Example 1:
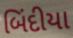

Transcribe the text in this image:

બિંદીયા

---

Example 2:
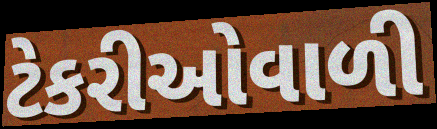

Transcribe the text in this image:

ટેકરીઓવાળી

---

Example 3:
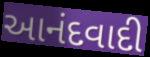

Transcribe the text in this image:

આનંદવાદી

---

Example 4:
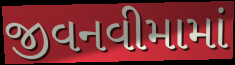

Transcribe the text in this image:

જીવનવીમામાં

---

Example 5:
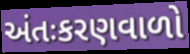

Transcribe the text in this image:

અંતઃકરણવાળો